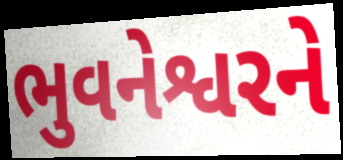
ભુવનેશ્વરને